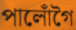
পালোঁগৈ